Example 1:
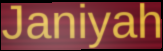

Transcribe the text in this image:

Janiyah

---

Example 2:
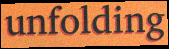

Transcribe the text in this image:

unfolding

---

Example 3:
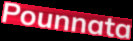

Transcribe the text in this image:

Pounnata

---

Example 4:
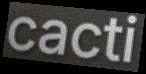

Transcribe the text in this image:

cacti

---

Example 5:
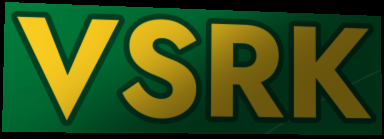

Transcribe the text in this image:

VSRK